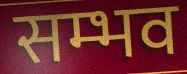
सम्भव